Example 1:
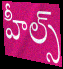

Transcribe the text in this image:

హీల్స్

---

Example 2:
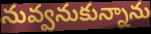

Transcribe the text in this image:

నువ్వనుకున్నాను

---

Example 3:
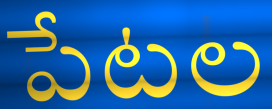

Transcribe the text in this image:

పేటల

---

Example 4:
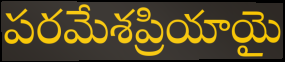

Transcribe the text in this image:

పరమేశప్రియాయై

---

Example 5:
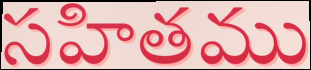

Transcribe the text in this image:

సహితము